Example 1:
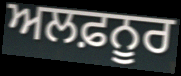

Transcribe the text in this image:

ਅਲਫ਼ਨੂਰ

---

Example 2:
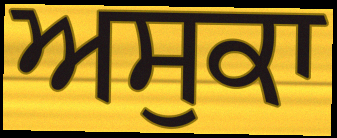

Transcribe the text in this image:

ਅਸੁਕਾ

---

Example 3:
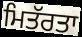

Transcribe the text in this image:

ਮਿਤੱਰਤਾ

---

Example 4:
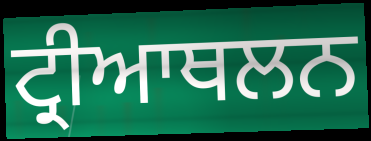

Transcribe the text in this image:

ਟ੍ਰੀਆਥਲਨ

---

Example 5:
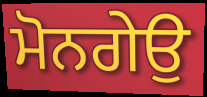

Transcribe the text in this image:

ਮੋਨਗੇਉ